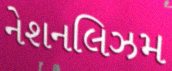
નેશનલિઝમ